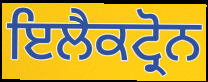
ਇਲੈਕਟ੍ਰੋਨ